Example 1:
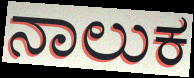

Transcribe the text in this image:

ನಾಲುಕ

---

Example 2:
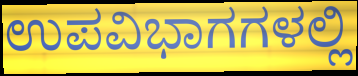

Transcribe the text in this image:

ಉಪವಿಭಾಗಗಳಲ್ಲಿ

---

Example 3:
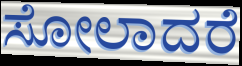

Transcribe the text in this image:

ಸೋಲಾದರೆ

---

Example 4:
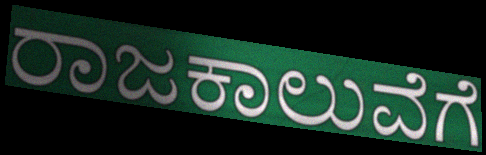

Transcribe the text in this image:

ರಾಜಕಾಲುವೆಗೆ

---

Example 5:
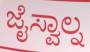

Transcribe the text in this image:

ಜೈಸ್ವಾಲ್ನ